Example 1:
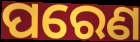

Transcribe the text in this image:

ପରେଣ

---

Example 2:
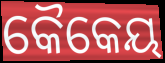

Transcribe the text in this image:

କୈକେୟ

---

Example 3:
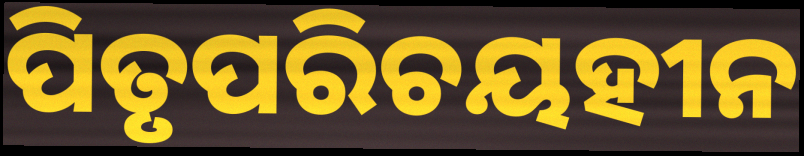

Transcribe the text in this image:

ପିତୃପରିଚୟହୀନ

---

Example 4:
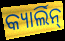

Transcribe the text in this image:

କ୍ୟାର୍ଲିନ୍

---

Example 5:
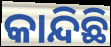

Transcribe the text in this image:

କାନ୍ଦିଛି